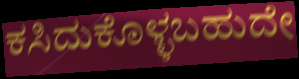
ಕಸಿದುಕೊಳ್ಳಬಹುದೇ